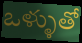
ఒళ్ళుతో